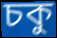
চকু